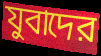
যুবাদের